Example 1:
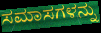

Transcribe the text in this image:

ಸಮಾಸಗಳನ್ನು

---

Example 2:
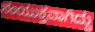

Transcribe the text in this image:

ಸಂಯುಕ್ತವಾಗಿದ್ದು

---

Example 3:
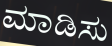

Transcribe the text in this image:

ಮಾಡಿಸು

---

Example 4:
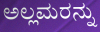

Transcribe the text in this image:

ಅಲ್ಲಮರನ್ನು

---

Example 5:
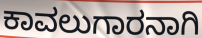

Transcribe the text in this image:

ಕಾವಲುಗಾರನಾಗಿ